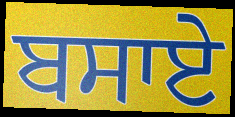
ਬਸਾਏ